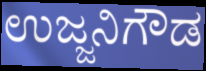
ಉಜ್ಜನಿಗೌಡ